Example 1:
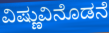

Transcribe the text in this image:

ವಿಷ್ಣುವಿನೊಡನೆ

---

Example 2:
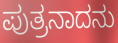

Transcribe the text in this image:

ಪುತ್ರನಾದನು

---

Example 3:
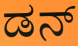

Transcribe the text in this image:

ಡನ್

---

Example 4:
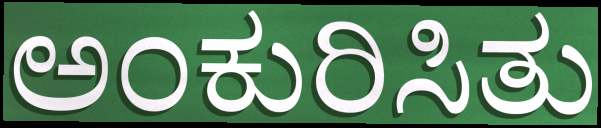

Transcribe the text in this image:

ಅಂಕುರಿಸಿತು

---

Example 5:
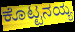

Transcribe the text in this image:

ಕೊಟ್ಟನಯ್ಯ